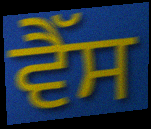
ਵੈੱਸ